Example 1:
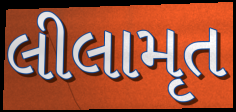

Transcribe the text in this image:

લીલામૃત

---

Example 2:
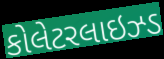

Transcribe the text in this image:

કોલેટરલાઇઝ્ડ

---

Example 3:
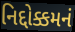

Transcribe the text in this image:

નિદ્દોક્કમનં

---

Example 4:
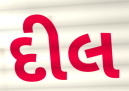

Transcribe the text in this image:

દીલ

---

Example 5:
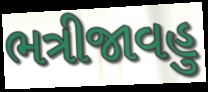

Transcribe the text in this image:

ભત્રીજાવહુ